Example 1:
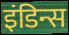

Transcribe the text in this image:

इंडिन्स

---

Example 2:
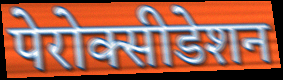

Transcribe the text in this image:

पेरोक्सीडेशन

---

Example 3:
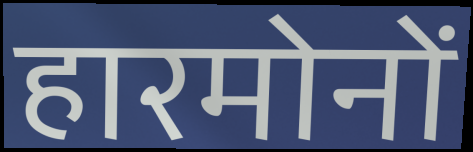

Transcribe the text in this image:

हारमोनों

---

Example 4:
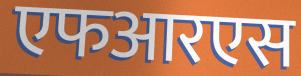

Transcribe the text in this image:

एफआरएस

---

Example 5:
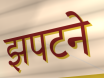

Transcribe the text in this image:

झपटने